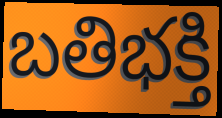
బతిభక్తి